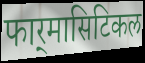
फार्मासिटिकल